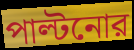
পাল্টনোর